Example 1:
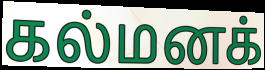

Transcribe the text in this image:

கல்மனக்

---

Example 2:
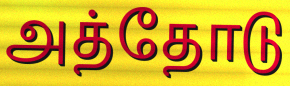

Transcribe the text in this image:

அத்தோடு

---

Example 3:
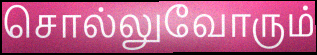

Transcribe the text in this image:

சொல்லுவோரும்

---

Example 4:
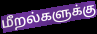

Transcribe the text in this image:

மீறல்களுக்கு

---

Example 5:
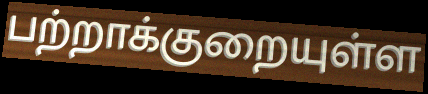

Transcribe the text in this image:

பற்றாக்குறையுள்ள